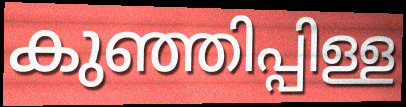
കുഞ്ഞിപ്പിള്ള